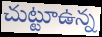
చుట్టూఉన్న